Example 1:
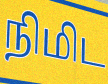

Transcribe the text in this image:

நிமிட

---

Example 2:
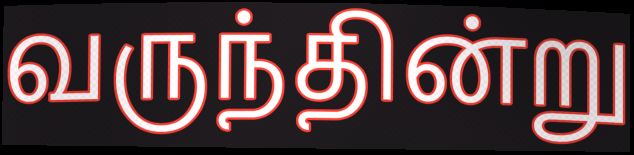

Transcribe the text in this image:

வருந்தின்று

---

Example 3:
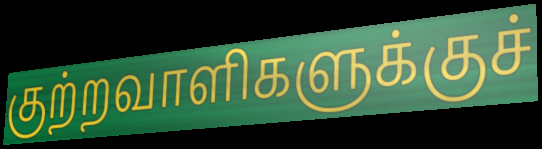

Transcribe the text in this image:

குற்றவாளிகளுக்குச்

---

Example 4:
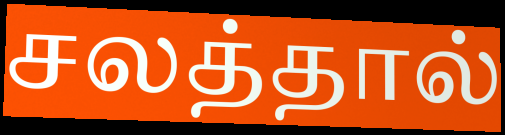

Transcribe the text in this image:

சலத்தால்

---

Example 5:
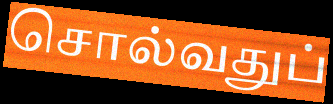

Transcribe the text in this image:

சொல்வதுப்